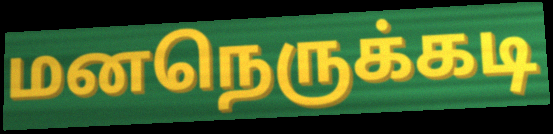
மனநெருக்கடி